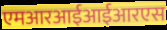
एमआरआईआईआरएस